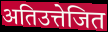
अतिउत्तेजित